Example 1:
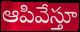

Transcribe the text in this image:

ఆపివేస్తూ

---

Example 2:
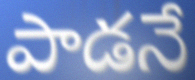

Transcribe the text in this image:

పాడనే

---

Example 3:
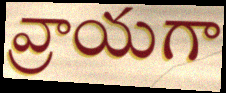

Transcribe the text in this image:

వ్రాయగా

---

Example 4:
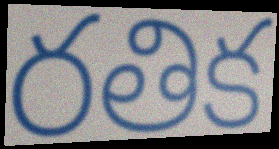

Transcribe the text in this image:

రతిక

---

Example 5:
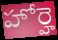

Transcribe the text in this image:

హోర్హె